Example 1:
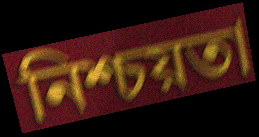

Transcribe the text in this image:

নিশ্চয়তা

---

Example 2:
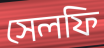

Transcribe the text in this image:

সেলফি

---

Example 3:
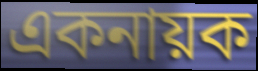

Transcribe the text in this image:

একনায়ক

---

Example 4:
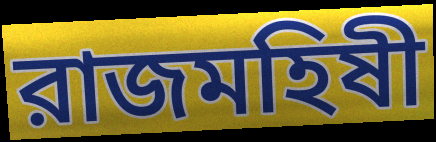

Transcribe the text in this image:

রাজমহিষী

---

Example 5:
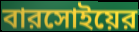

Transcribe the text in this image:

বারসোইয়ের